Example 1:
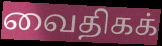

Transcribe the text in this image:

வைதிகக்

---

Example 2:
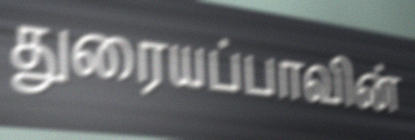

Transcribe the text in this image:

துரையப்பாவின்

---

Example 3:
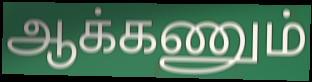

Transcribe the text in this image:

ஆக்கணும்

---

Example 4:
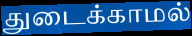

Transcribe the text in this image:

துடைக்காமல்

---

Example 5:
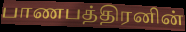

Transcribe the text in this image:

பாணபத்திரனின்